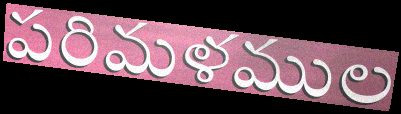
పరిమళముల